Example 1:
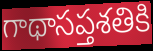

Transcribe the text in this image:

గాథాసప్తశతికి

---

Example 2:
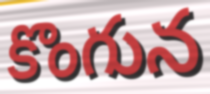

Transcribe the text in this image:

కొంగున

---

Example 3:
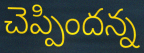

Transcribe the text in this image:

చెప్పిందన్న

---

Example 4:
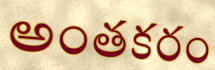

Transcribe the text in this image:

అంతకరం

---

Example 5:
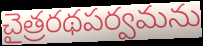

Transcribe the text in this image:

చైత్రరథపర్వమను